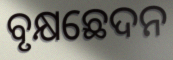
ବୃକ୍ଷଛେଦନ